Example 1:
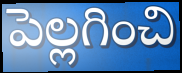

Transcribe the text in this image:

పెల్లగించి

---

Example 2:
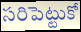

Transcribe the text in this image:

సరిపెట్టుకో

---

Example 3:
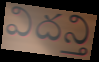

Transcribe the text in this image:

విదన్తి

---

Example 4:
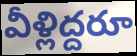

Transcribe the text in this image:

వీళ్లిద్దరూ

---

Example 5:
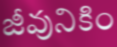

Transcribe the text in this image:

జీవునికిం